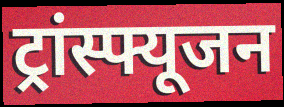
ट्रांस्फ्यूजन